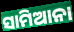
ସାମିଆନା